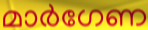
മാർഗേണ